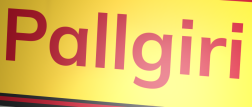
Pallgiri